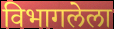
विभागलेला